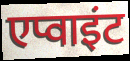
एप्वाइंट